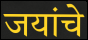
जयांचे